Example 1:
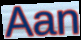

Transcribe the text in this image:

Aan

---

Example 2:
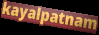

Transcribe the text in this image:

kayalpatnam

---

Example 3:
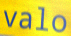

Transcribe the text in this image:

valo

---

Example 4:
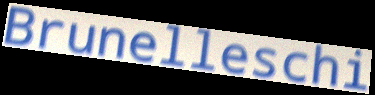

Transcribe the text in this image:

Brunelleschi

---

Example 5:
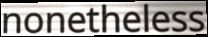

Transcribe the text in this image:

nonetheless